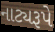
નાટ્યરૂપે